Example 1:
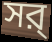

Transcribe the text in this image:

সর্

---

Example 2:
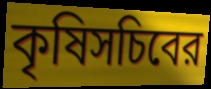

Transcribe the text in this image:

কৃষিসচিবের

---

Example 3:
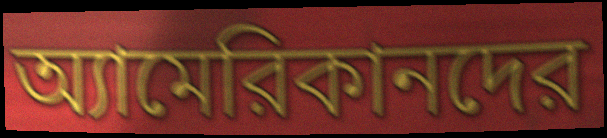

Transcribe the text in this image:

অ্যামেরিকানদের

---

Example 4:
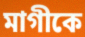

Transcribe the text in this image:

মাগীকে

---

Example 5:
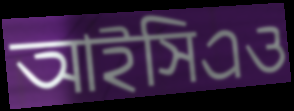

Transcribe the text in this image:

আইসিএও